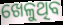
ଖେଳୁଥିବ